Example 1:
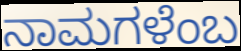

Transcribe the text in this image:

ನಾಮಗಳೆಂಬ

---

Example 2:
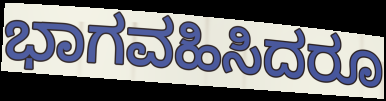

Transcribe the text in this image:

ಭಾಗವಹಿಸಿದರೂ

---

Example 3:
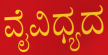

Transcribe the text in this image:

ವೈವಿಧ್ಯದ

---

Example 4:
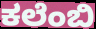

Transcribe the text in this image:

ಕಲೆಂಬಿ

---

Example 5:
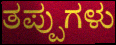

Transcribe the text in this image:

ತಪ್ಪುಗಳು